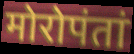
मोरोपंतां